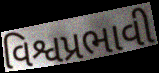
વિશ્વપ્રભાવી